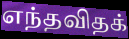
எந்தவிதக்